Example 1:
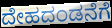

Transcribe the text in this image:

ದೇಹದಂಡನೆಗೆ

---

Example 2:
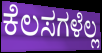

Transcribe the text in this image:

ಕೆಲಸಗಳೆಲ್ಲ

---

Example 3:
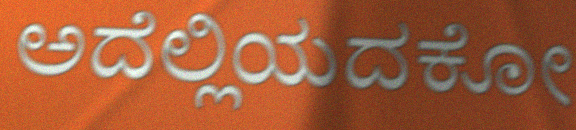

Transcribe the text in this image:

ಅದೆಲ್ಲಿಯದಕೋ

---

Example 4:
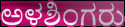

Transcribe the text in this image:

ಅಳಶಿಂಗರು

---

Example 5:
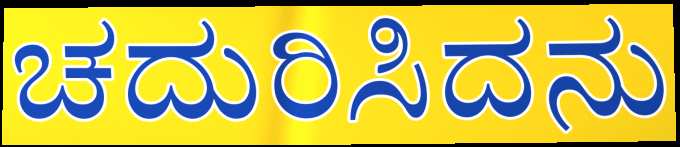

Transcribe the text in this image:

ಚದುರಿಸಿದನು